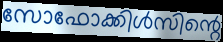
സോഫോക്കിൾസിന്റെ